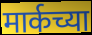
मार्कच्या